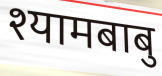
श्यामबाबु